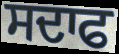
ਸਦਾਫ